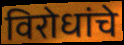
विरोधांचे